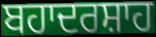
ਬਹਾਦਰਸ਼ਾਹ